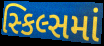
સ્કિલ્સમાં